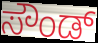
ಸೌಂಡ್